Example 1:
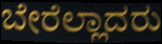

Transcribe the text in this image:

ಬೇರೆಲ್ಲಾದರು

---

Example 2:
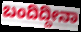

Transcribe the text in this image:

ಬಂದಿದ್ದೀನಾ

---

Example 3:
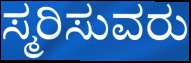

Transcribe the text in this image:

ಸ್ಮರಿಸುವರು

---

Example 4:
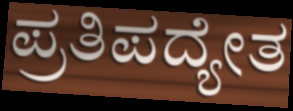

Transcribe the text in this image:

ಪ್ರತಿಪದ್ಯೇತ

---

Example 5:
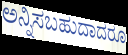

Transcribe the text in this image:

ಅನ್ನಿಸಬಹುದಾದರೂ